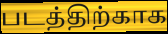
படத்திற்காக